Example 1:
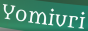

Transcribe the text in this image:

Yomiuri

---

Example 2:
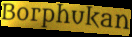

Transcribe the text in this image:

Borphukan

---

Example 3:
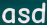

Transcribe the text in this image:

asd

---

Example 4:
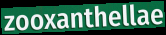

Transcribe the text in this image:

zooxanthellae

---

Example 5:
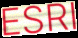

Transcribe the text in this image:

ESRI